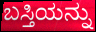
ಬಸ್ತಿಯನ್ನು